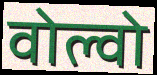
वोल्वो